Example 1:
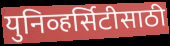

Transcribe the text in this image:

युनिव्हर्सिटीसाठी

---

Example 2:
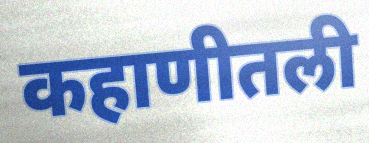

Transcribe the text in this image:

कहाणीतली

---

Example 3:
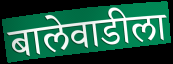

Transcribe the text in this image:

बालेवाडीला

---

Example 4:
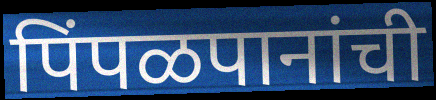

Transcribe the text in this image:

पिंपळपानांची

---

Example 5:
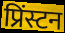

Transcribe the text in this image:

प्रिंस्टन